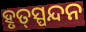
ହୃତ୍‌ସ୍ପନ୍ଦନ